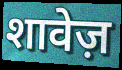
शावेज़